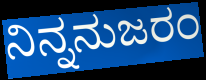
ನಿನ್ನನುಜರಂ